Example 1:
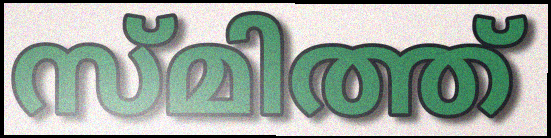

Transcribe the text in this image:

സ്മിത്ത്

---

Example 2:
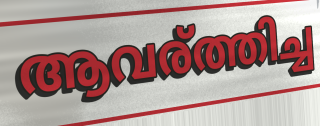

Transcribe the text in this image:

ആവര്ത്തിച്ച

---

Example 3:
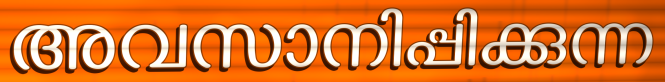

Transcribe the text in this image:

അവസാനിപ്പിക്കുന്ന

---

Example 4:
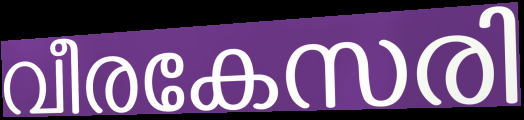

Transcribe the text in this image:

വീരകേസരി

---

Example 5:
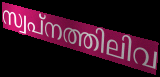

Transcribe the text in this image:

സ്വപ്നത്തിലിവ